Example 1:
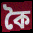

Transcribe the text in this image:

কৈ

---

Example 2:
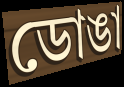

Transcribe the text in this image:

ডোঙা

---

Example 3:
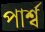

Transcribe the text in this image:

পাৰ্শ্ব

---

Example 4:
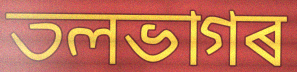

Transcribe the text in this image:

তলভাগৰ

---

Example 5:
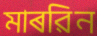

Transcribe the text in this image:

মাৰৱিন